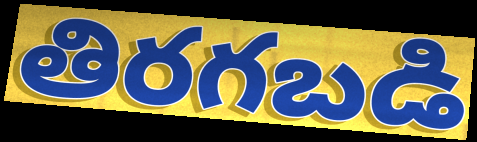
తిరగబడి